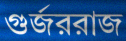
গুর্জররাজ